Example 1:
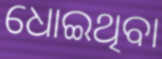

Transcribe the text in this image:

ଧୋଇଥିବା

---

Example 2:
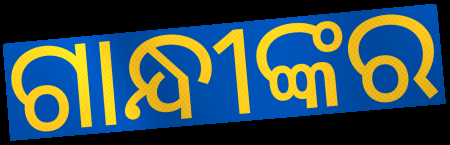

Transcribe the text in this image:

ଗାନ୍ଧୀଙ୍କର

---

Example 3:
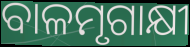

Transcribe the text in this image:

ବାଳମୃଗାକ୍ଷୀ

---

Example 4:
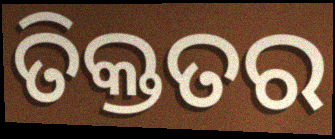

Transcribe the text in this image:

ତିକ୍ତତର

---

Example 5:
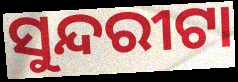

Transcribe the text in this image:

ସୁନ୍ଦରୀଟା